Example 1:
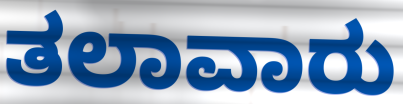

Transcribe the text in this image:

ತಲಾವಾರು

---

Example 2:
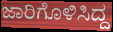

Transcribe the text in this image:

ಜಾರಿಗೊಳಿಸಿದ್ದ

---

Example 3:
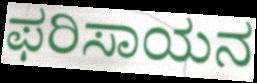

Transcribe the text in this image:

ಫರಿಸಾಯನ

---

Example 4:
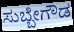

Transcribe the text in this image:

ಸುಬ್ಬೇಗೌಡ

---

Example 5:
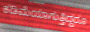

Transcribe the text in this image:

ಕಡಿಮೆಯಾಗುತ್ತಿದ್ದರೂ